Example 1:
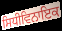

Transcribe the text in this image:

ਸਿਧੀਵਿਨਾਇਕ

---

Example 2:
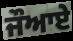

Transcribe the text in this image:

ਜੌਆਏ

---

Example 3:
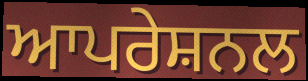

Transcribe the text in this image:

ਆਪਰੇਸ਼ਨਲ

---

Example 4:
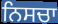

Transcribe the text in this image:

ਨਿਸਚਾ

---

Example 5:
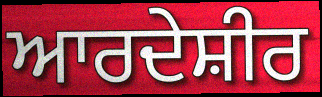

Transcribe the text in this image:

ਆਰਦੇਸ਼ੀਰ